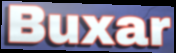
Buxar